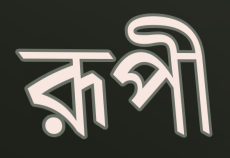
রূপী